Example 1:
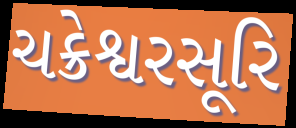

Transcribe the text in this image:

ચક્રેશ્વરસૂરિ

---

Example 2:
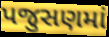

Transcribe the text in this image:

પજુસણમાં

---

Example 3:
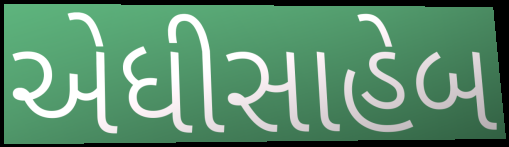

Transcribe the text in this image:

એધીસાહેબ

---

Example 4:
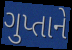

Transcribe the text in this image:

ગુપ્તાને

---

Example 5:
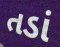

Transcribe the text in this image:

તડાં